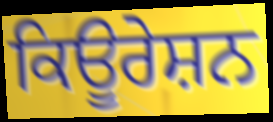
ਕਿਊਰੇਸ਼ਨ